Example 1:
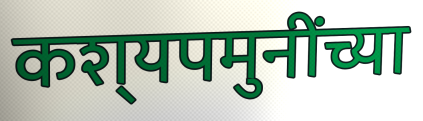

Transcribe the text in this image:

कश्यपमुनींच्या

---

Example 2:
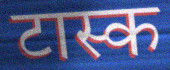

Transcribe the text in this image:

टास्क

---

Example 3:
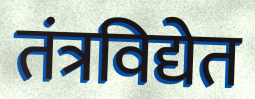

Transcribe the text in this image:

तंत्रविद्येत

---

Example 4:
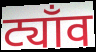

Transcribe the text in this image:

ट्याँव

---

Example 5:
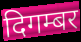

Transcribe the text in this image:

दिगम्बर